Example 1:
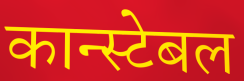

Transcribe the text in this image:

कान्स्टेबल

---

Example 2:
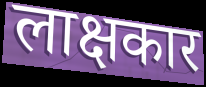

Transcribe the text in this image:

लाक्षकार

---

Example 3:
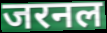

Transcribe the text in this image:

जरनल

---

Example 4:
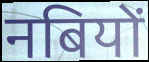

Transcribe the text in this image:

नबियों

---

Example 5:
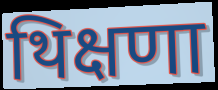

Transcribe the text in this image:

थिक्षणा